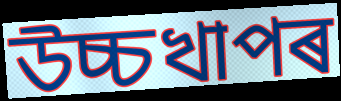
উচ্চখাপৰ